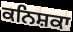
ਕਨਿਸ਼ਕਾ